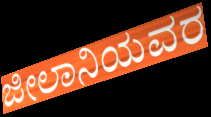
ಜೀಲಾನಿಯವರ